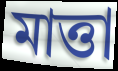
মাত্তা